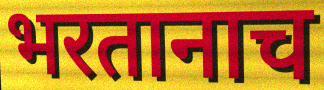
भरतानाच